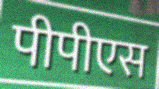
पीपीएस